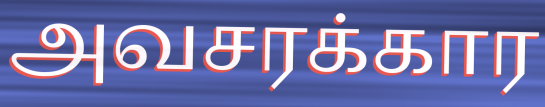
அவசரக்கார